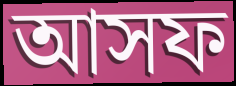
আসফ